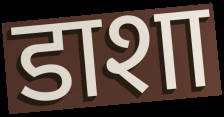
डाशा